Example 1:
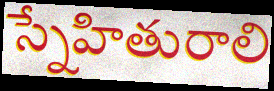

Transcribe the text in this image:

స్నేహితురాలి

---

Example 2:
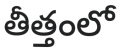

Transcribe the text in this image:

తీత్తంలో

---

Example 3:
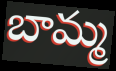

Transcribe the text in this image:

బామ్మ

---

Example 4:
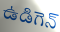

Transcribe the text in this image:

ఉడిగెన్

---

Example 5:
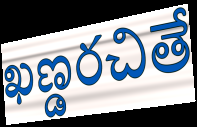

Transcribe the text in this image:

ఖణ్డరచితే